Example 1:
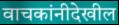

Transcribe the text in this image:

वाचकांनीदेखील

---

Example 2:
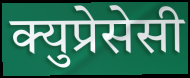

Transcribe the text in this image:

क्युप्रेसेसी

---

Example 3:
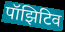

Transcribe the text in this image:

पॉझिटिव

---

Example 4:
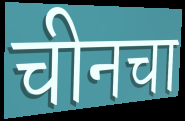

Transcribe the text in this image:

चीनचा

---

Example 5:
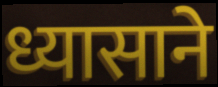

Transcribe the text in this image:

ध्यासाने